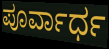
ಪೂರ್ವಾರ್ಧ